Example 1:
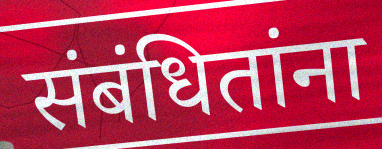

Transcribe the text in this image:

संबंधितांना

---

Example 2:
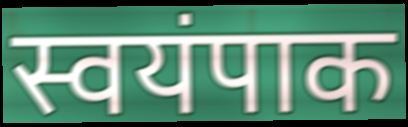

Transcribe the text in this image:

स्वयंपाक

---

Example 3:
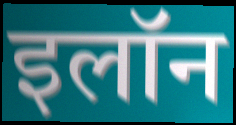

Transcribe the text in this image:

इलॉन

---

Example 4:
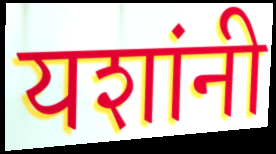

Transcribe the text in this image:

यशांनी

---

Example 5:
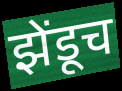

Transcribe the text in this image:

झेंडूच